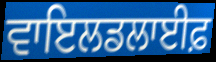
ਵਾਇਲਡਲਾਈਫ਼